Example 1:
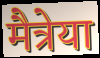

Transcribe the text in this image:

मैत्रेया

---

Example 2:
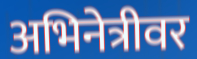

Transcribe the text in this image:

अभिनेत्रीवर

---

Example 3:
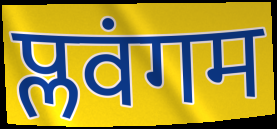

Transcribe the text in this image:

प्लवंगम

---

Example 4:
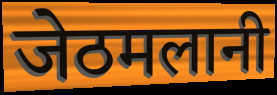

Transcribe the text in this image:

जेठमलानी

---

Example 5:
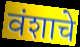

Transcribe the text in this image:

वंशाचे